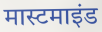
मास्टमाइंड